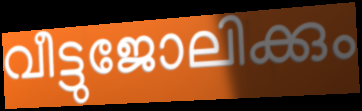
വീട്ടുജോലിക്കും